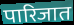
पारिजात